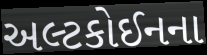
અલ્ટકોઈનના